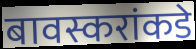
बावस्करांकडे